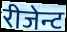
रीजेन्ट